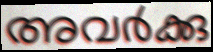
അവർക്കു